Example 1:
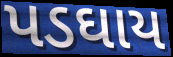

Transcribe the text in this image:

પડઘાય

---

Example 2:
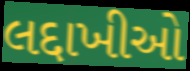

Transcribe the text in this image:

લદ્દાખીઓ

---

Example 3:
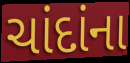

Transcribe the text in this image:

ચાંદાંના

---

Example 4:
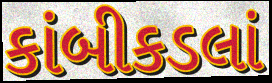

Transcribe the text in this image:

કાંબીકડલાં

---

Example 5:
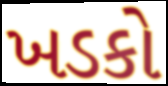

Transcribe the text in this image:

ખડકો